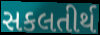
સકલતીર્થ